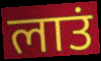
लाउं